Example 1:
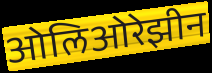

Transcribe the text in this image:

ओलिओरेझीन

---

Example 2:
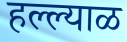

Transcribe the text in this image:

हल्ल्याळ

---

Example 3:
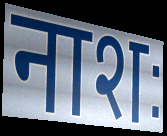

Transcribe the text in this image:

नाशः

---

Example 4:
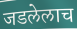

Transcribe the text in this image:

जडलेलाच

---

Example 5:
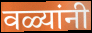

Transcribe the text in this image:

वळ्यांनी